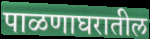
पाळणाघरातील